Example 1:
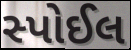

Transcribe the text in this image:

સ્પોઈલ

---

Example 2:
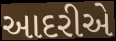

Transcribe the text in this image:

આદરીએ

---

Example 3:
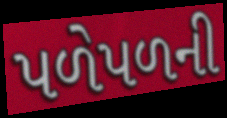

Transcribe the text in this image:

પળેપળની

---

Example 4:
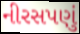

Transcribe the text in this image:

નીરસપણું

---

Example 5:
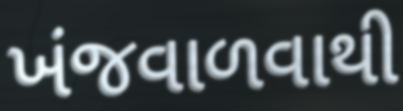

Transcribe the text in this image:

ખંજવાળવાથી